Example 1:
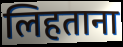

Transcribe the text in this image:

लिहताना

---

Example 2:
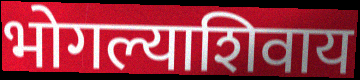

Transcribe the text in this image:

भोगल्याशिवाय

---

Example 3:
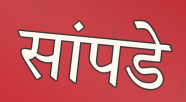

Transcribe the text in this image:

सांपडे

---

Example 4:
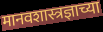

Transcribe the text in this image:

मानवशास्त्रज्ञाच्या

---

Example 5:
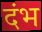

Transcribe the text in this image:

दंभ